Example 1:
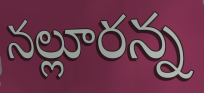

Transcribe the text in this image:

నల్లూరన్న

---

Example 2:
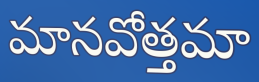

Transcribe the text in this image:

మానవోత్తమా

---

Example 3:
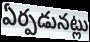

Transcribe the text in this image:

ఏర్పడునట్లు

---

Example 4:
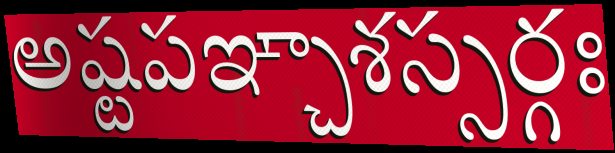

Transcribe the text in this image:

అష్టపఞ్చాశస్సర్గః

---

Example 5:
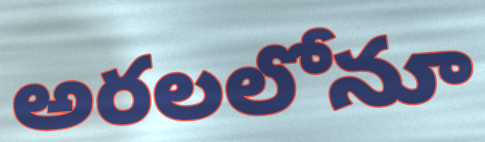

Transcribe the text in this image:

అరలలోనూ